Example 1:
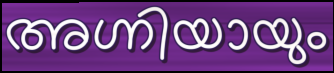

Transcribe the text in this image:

അഗ്നിയായും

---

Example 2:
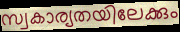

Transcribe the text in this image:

സ്വകാര്യതയിലേക്കും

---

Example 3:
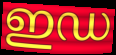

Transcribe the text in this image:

ഇഡ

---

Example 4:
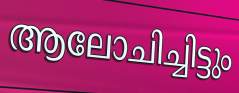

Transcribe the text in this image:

ആലോചിച്ചിട്ടും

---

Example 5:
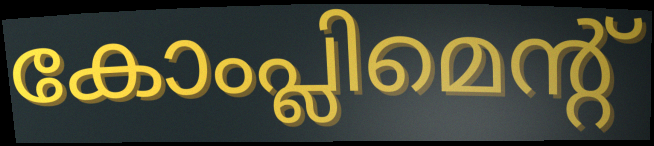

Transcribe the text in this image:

കോംപ്ലിമെന്റ്